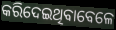
କରିଦେଇଥିବାବେଳେ